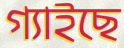
গ্যাইছে